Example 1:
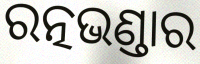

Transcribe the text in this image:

ରତ୍ନଭଣ୍ଡାର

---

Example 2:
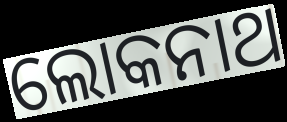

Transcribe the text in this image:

ଲୋକନାଥ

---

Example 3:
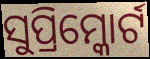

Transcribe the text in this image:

ସୁପ୍ରିମ୍କୋର୍ଟ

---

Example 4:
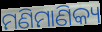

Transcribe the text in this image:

ମଣିମାଣିକ୍ୟ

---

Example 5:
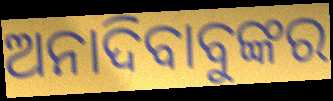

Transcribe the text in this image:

ଅନାଦିବାବୁଙ୍କର